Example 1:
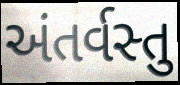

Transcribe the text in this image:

અંતર્વસ્તુ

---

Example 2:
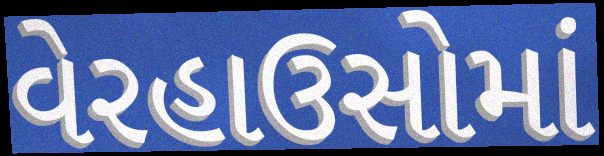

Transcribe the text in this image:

વેરહાઉસોમાં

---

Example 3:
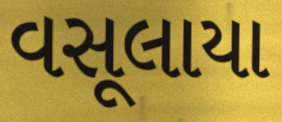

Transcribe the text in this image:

વસૂલાયા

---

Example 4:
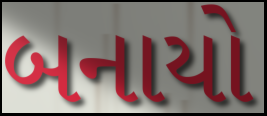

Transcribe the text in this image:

બનાયો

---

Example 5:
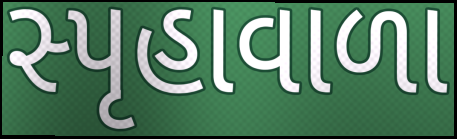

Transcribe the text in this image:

સ્પૃહાવાળા